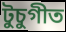
টুচুগীত